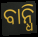
ବାନ୍ଧି